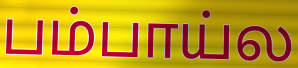
பம்பாய்ல